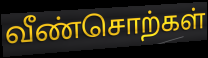
வீண்சொற்கள்